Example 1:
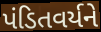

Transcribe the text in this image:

પંડિતવર્યને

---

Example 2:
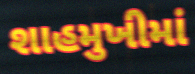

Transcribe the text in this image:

શાહમુખીમાં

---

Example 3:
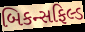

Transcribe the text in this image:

બિકન્સફિલ્ડ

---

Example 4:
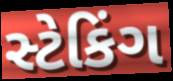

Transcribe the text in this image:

સ્ટેકિંગ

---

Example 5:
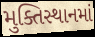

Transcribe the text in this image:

મુક્તિસ્થાનમાં